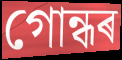
গোন্ধৰ